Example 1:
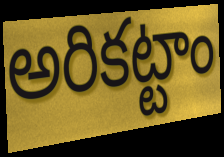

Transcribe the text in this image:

అరికట్టాం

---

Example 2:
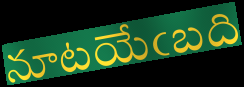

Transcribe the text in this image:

నూటయేఁబది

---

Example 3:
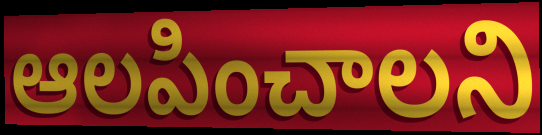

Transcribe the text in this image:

ఆలపించాలని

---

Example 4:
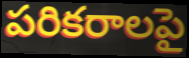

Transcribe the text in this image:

పరికరాలపై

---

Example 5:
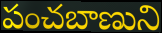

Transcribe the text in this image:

పంచబాణుని